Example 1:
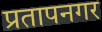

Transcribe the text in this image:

प्रतापनगर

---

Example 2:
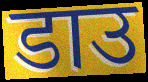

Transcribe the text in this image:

डाउ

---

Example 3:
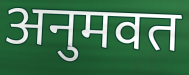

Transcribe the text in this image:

अनुमवत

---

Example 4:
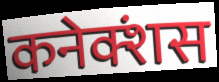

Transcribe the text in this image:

कनेक्शंस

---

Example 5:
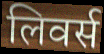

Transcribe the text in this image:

लिवर्स